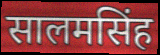
सालमसिंह